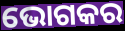
ଭୋଗକର